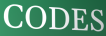
CODES